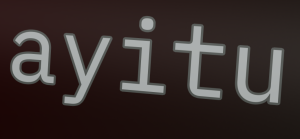
ayitu